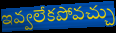
ఇవ్వలేకపోవచ్చు